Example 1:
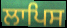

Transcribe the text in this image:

ਲਾਪਿਸ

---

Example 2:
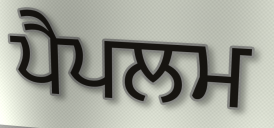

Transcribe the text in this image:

ਪੈਪਲਮ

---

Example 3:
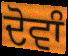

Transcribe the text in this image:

ਦੋਵਾੰ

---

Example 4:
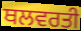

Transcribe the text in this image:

ਥਲਵਰਤੀ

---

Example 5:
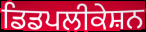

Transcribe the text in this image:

ਡਿਡਪਲੀਕੇਸ਼ਨ